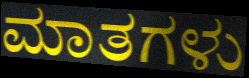
ಮಾತಗಳು